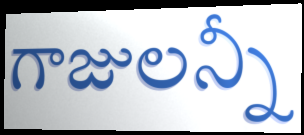
గాజులన్నీ